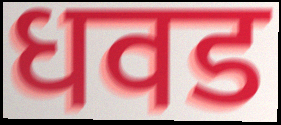
धवड